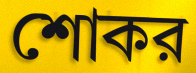
শোকর